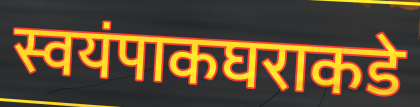
स्वयंपाकघराकडे